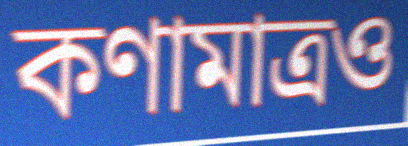
কণামাত্রও